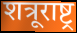
शत्रूराष्ट्र